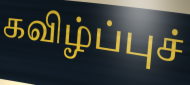
கவிழ்ப்புச்